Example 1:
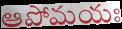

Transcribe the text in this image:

ఆపోమయః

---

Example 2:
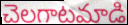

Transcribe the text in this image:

చెలగాటమాడి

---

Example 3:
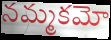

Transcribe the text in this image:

నమ్మకమో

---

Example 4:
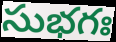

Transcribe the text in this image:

సుభగః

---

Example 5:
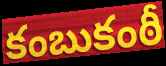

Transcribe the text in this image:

కంబుకంఠీ